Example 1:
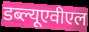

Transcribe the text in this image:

डब्ल्यूएवीएल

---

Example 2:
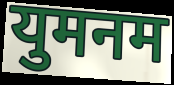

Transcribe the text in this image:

युमनम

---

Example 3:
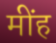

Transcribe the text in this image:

मींह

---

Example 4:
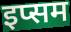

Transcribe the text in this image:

इप्सम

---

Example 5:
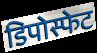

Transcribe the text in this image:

डिपोस्फेट